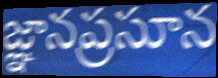
జ్ఞానప్రసూన